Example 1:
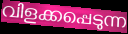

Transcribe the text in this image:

വിളക്കപ്പെടുന്ന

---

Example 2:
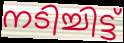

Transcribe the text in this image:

നടിച്ചിട്ട്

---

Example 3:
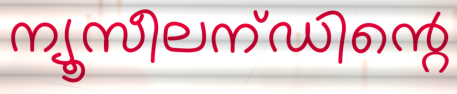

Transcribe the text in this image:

ന്യൂസീലന്ഡിന്റെ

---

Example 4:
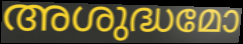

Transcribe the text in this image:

അശുദ്ധമോ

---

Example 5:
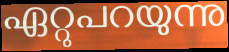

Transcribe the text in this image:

ഏറ്റുപറയുന്നു